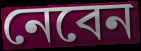
নেবেন